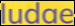
Iudae